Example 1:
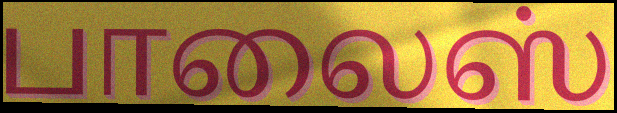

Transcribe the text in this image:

பாலைஸ்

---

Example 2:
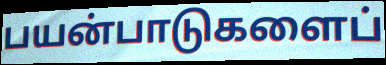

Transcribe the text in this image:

பயன்பாடுகளைப்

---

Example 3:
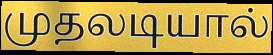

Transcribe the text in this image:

முதலடியால்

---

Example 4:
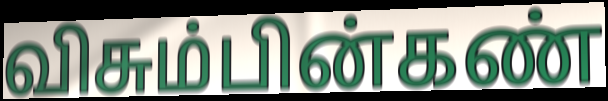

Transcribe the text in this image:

விசும்பின்கண்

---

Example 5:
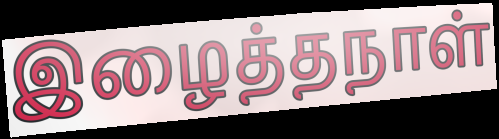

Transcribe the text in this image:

இழைத்தநாள்